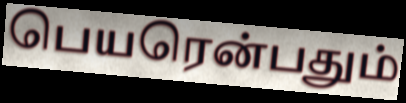
பெயரென்பதும்